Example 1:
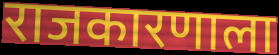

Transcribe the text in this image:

राजकारणाला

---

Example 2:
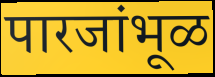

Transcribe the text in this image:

पारजांभूळ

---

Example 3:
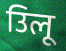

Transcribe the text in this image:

उिलू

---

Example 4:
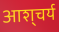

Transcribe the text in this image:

आश्चर्य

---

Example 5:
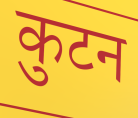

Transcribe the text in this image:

कुटन